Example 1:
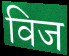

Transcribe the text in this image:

विज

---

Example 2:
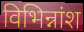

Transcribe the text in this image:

विभिन्नांश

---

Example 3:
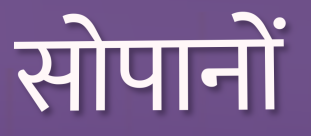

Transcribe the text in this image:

सोपानों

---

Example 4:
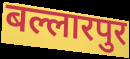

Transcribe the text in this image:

बल्लारपुर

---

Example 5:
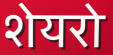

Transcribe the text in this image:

शेयरो